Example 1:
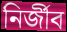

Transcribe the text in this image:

নির্জীব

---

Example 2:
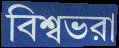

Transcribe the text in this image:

বিশ্বভরা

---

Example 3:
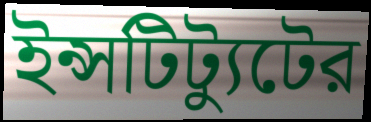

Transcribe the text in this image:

ইন্সটিট্যুটের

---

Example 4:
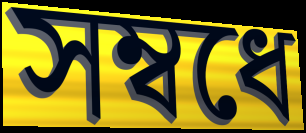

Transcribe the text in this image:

সম্বধে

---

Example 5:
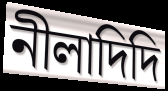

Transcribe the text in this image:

নীলাদিদি